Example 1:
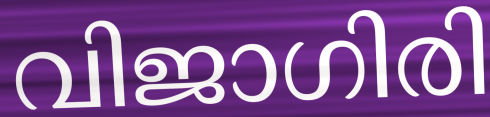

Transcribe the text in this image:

വിജാഗിരി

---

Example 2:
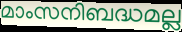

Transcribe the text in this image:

മാംസനിബദ്ധമല്ല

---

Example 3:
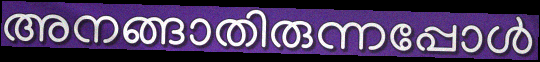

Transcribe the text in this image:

അനങ്ങാതിരുന്നപ്പോൾ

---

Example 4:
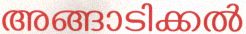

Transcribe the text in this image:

അങ്ങാടിക്കൽ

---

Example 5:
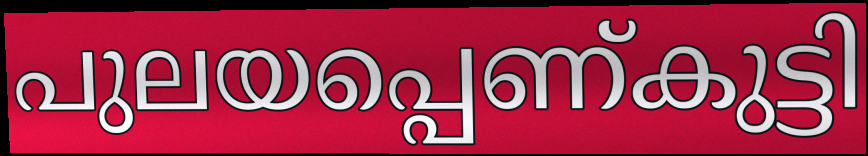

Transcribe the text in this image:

പുലയപ്പെണ്കുട്ടി